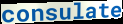
consulate